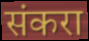
संकरा